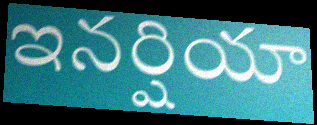
ఇనర్షియా